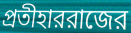
প্রতীহাররাজের